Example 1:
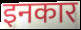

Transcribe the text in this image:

इनकार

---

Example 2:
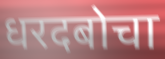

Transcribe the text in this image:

धरदबोचा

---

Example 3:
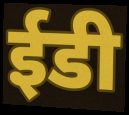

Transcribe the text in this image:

ईडी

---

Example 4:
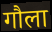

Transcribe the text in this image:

गौला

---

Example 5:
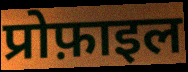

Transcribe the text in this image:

प्रोफ़ाइल